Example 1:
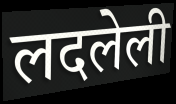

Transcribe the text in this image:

लदलेली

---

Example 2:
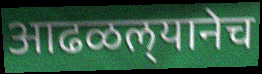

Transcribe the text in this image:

आढळल्यानेच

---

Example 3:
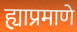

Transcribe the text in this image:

ह्याप्रमाणे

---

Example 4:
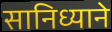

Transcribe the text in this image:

सानिध्याने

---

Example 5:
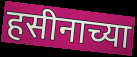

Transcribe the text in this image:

हसीनाच्या